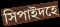
সিপাইদহে